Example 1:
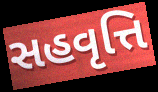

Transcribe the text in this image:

સહવૃત્તિ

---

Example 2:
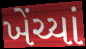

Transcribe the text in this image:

ખેંચ્યાં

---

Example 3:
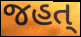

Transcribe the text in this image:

જહત્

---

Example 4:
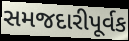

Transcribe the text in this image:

સમજદારીપૂર્વક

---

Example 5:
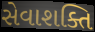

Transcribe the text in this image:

સેવાશક્તિ